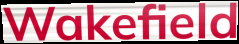
Wakefield